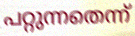
പറ്റുന്നതെന്ന്